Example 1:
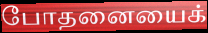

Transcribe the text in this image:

போதனையைக்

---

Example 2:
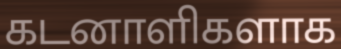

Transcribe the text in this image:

கடனாளிகளாக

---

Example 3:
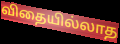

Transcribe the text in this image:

விதையில்லாத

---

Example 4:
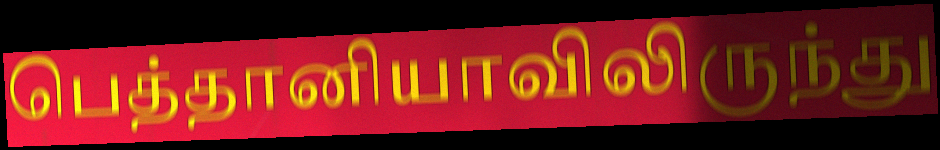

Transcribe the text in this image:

பெத்தானியாவிலிருந்து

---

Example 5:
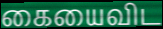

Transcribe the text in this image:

கையைவிட